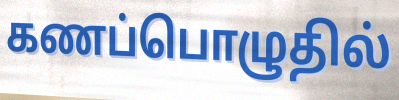
கணப்பொழுதில்